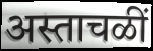
अस्ताचळीं